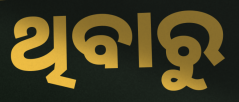
ଥିବାରୁ